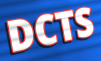
DCTS